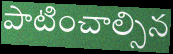
పాటించాల్సిన